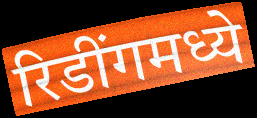
रिडींगमध्ये